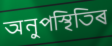
অনুপস্থিতিৰ